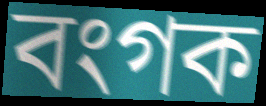
বংগক